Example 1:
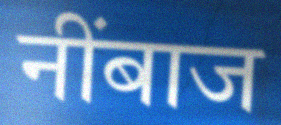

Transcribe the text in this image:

नींबाज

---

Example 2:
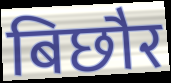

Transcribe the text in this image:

बिछौर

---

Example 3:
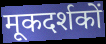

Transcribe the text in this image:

मूकदर्शकों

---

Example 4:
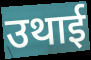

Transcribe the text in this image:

उथाई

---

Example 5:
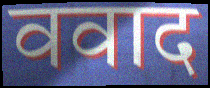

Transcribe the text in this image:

ववाद